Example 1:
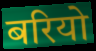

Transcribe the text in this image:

बरियो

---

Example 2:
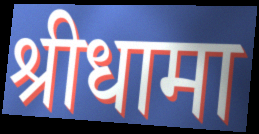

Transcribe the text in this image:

श्रीधामा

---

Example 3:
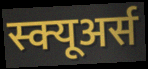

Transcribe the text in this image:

स्क्यूअर्स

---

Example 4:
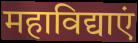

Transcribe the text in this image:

महाविद्याएं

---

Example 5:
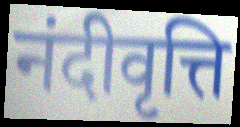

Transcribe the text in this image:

नंदीवृत्ति